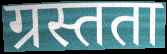
ग्रस्तता